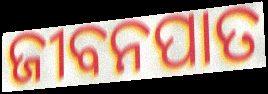
ଜୀବନପାତ